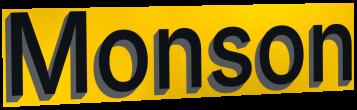
Monson